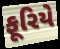
ફૂરિયે